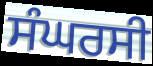
ਸੰਘਰਸੀ